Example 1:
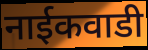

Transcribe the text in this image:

नाईकवाडी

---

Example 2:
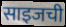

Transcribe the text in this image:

साइजची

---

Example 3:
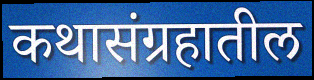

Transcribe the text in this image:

कथासंग्रहातील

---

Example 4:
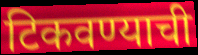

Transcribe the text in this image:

टिकवण्याची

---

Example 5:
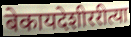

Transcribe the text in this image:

बेकायदेशीररीत्या